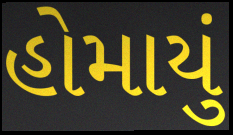
હોમાયું